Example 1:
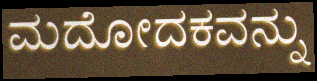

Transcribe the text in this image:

ಮದೋದಕವನ್ನು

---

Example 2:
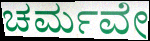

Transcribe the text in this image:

ಚರ್ಮವೇ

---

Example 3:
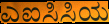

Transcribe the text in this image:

ಎಐಸಿಸಿಯ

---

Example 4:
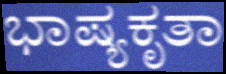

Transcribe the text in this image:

ಭಾಷ್ಯಕೃತಾ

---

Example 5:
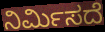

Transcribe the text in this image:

ನಿರ್ಮಿಸದೆ